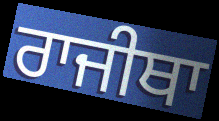
ਰਾਜੀਥਾ